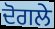
ਦੋਗਲੇ